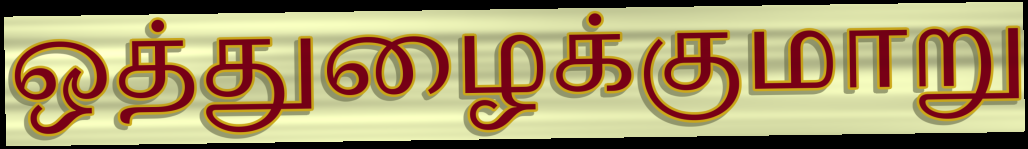
ஒத்துழைக்குமாறு